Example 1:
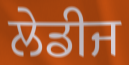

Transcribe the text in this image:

ਲੇਡੀਜ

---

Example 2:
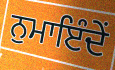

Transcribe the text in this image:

ਨੁਮਾਇੰਦੇਂ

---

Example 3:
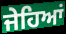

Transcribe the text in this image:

ਜੇਹਿਆਂ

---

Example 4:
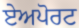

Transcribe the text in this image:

ਏਅਪੋਰਟ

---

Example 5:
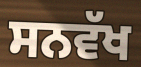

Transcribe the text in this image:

ਸਨਵੱਖ